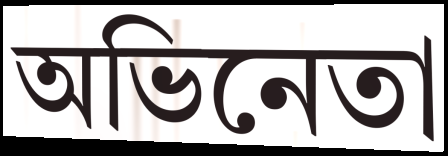
অভিনেতা